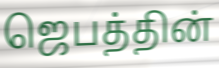
ஜெபத்தின்